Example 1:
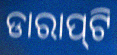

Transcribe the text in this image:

ଡାରାପ୍‌ଟି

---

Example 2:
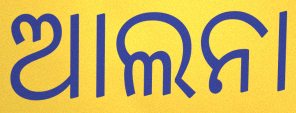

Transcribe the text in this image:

ଆଲନା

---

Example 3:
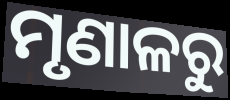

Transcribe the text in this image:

ମୃଣାଳରୁ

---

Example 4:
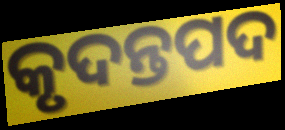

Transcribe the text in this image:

କୃଦନ୍ତପଦ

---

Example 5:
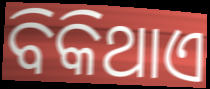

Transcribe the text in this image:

ବିକିଥାଏ